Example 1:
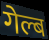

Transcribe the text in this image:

गेल्ब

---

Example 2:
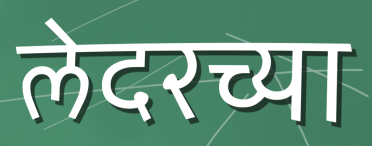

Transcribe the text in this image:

लेदरच्या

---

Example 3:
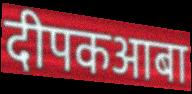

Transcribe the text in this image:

दीपकआबा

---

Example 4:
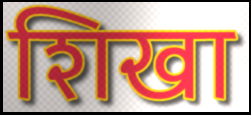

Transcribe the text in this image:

शिखा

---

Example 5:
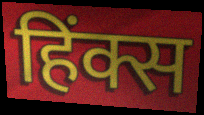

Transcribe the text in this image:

हिंक्स